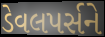
ડેવલપર્સને